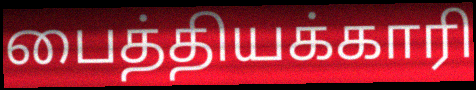
பைத்தியக்காரி